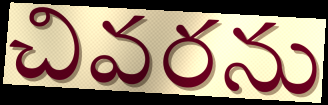
చివరను